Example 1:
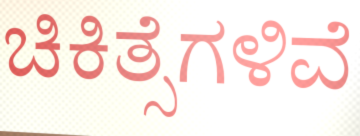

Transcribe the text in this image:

ಚಿಕಿತ್ಸೆಗಳಿವೆ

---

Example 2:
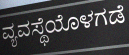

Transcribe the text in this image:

ವ್ಯವಸ್ಥೆಯೊಳಗಡೆ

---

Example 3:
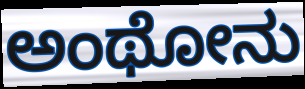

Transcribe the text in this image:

ಅಂಥೋನು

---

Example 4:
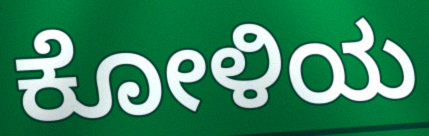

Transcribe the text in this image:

ಕೋಳಿಯ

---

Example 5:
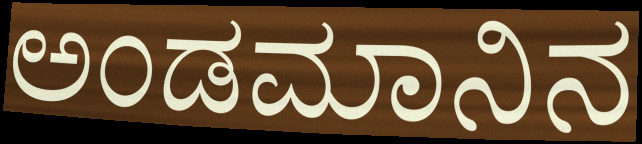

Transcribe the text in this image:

ಅಂಡಮಾನಿನ